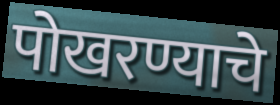
पोखरण्याचे